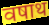
वषाथ